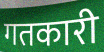
गतकारी